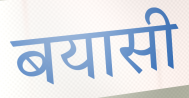
बयासी